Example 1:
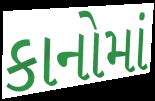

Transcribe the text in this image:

કાનોમાં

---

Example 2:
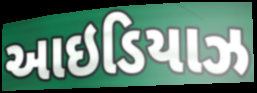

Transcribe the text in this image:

આઇડિયાઝ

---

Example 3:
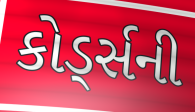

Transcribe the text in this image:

કોર્ડ્સની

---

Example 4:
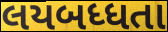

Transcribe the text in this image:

લયબધ્ધતા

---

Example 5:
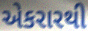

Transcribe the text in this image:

એકરારથી